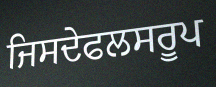
ਜਿਸਦੇਫਲਸਰੂਪ